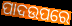
ପାଦଉପରେ